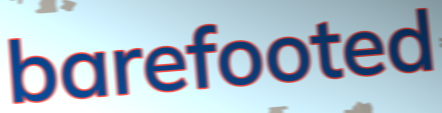
barefooted